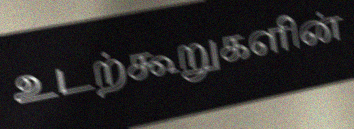
உடற்கூறுகளின்